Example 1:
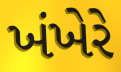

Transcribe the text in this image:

ખંખેરે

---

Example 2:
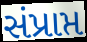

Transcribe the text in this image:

સંપ્રાપ્ત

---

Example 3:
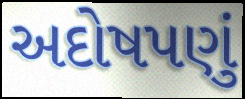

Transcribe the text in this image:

અદોષપણું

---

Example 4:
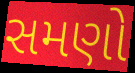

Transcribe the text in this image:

સમણો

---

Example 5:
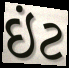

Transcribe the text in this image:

ઇંટ